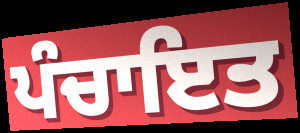
ਪੰਚਾਇਤ